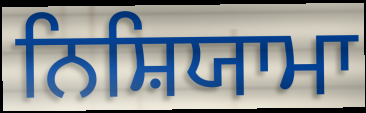
ਨਿਸ਼ਿਯਾਮਾ